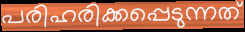
പരിഹരിക്കപ്പെടുന്നത്